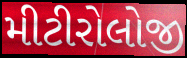
મીટીરોલોજી